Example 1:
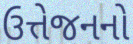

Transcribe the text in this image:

ઉત્તેજનનો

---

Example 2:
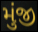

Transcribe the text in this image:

મુંજી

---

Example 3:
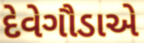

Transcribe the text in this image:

દેવેગૌડાએ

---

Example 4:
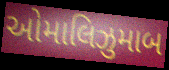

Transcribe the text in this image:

ઓમાલિઝુમાબ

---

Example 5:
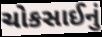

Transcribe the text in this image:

ચોકસાઈનું